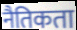
नैतिकता